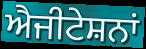
ਐਜੀਟੇਸ਼ਨਾਂ